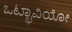
ಒಟ್ಟಾವಿಯೋ